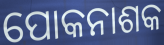
ପୋକନାଶକ